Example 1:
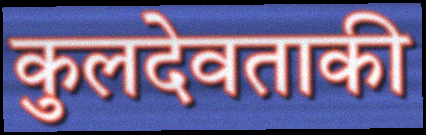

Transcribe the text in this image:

कुलदेवताकी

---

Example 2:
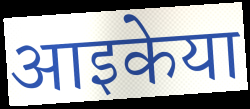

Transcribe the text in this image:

आइकेया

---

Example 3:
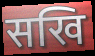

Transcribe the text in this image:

सखि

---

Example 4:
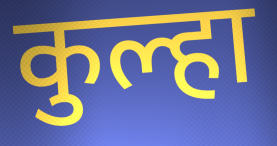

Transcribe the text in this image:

कुल्हा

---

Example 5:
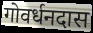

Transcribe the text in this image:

गोवर्धनदास